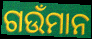
ଗଉଁମାନ